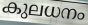
കുലധനം